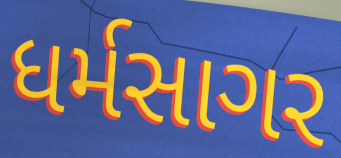
ધર્મસાગર